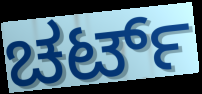
ಚರ್ಟ್